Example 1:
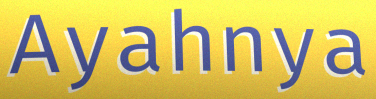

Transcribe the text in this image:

Ayahnya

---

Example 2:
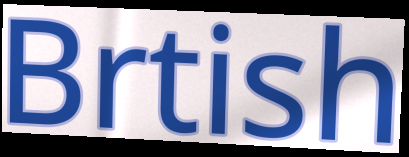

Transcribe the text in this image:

Brtish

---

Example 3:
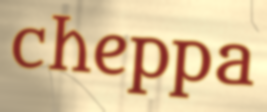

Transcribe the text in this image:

cheppa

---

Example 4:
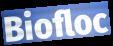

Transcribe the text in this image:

Biofloc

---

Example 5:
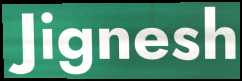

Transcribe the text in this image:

Jignesh